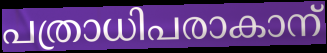
പത്രാധിപരാകാന്